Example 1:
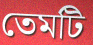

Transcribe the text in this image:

তেমটি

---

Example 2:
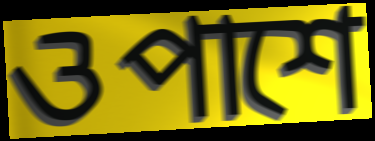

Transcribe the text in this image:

ওপাশে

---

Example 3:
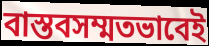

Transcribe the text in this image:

বাস্তবসম্মতভাবেই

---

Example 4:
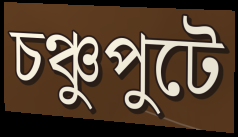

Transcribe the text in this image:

চঞ্চুপুটে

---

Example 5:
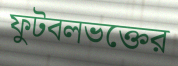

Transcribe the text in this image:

ফুটবলভক্তের